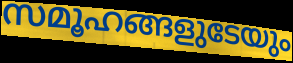
സമൂഹങ്ങളുടേയും